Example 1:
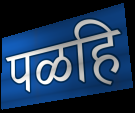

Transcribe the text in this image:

पळहि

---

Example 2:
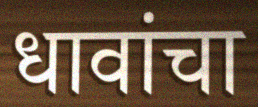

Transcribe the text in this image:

धावांचा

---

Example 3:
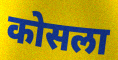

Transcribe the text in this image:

कोसला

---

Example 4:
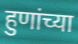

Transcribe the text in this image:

हुणांच्या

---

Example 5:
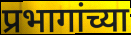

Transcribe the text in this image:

प्रभागांच्या